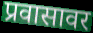
प्रवासावर